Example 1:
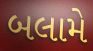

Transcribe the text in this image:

બલામે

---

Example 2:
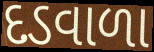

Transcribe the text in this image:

દડવાળા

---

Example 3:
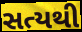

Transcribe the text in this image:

સત્યથી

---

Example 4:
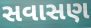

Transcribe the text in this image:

સવાસણ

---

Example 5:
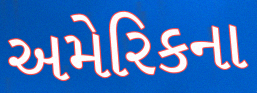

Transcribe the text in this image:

અમેરિકના